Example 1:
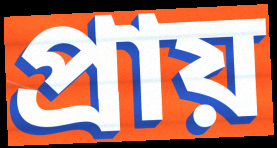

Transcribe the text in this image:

প্রায়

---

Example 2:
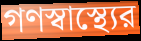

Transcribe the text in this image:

গণস্বাস্থ্যের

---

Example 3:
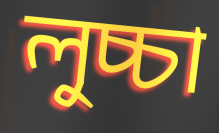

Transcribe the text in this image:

লুচ্চা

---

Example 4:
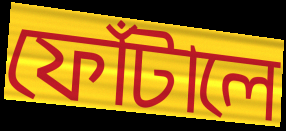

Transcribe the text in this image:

ফোঁটালে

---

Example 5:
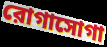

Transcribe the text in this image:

রোগাসোগা